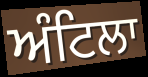
ਅੰਟਿਲਾ